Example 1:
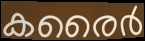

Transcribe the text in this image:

കരൈർ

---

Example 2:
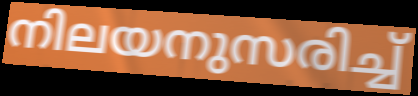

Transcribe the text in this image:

നിലയനുസരിച്ച്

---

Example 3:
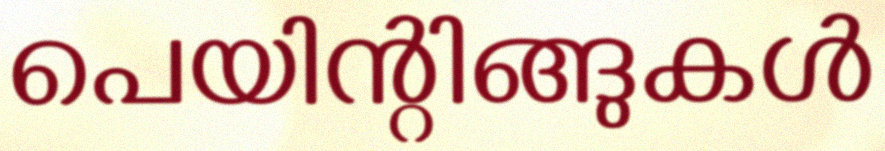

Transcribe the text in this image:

പെയിന്റിങ്ങുകൾ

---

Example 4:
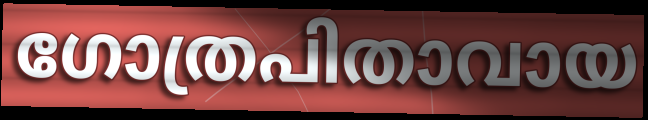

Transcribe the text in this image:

ഗോത്രപിതാവായ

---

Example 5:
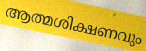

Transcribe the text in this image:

ആത്മശിക്ഷണവും